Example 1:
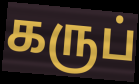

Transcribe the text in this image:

கருப்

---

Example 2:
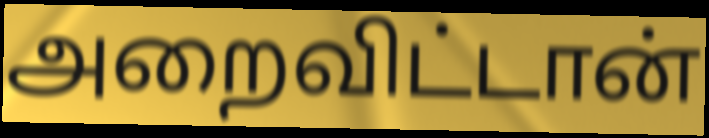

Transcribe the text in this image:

அறைவிட்டான்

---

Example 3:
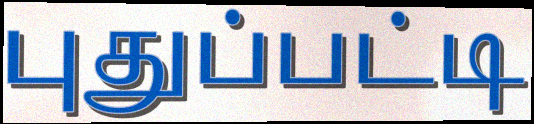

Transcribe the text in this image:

புதுப்பட்டி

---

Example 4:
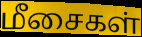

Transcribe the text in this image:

மீசைகள்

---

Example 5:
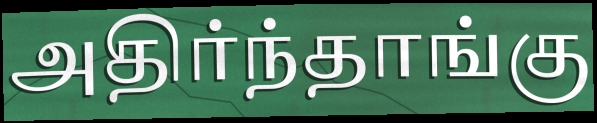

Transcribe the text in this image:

அதிர்ந்தாங்கு